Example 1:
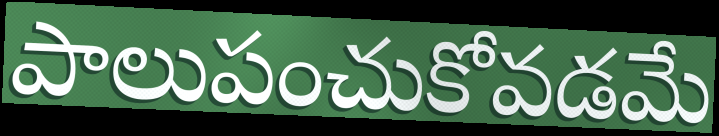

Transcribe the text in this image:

పాలుపంచుకోవడమే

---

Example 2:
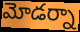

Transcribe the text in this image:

మోడర్నా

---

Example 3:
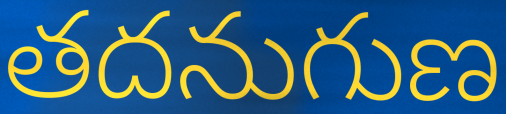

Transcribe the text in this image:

తదనుగుణ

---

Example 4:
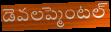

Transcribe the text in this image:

డెవలప్మెంటల్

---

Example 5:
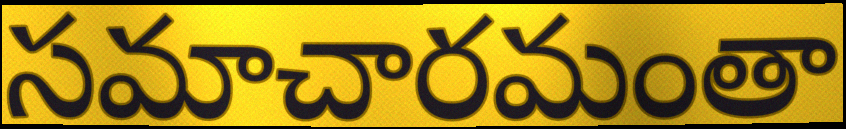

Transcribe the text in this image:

సమాచారమంతా